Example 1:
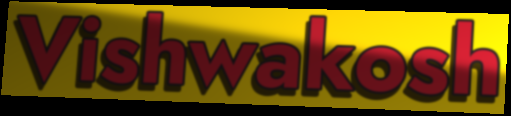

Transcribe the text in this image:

Vishwakosh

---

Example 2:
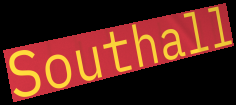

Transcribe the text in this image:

Southall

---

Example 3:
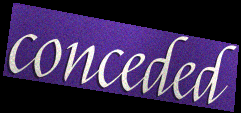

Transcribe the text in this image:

conceded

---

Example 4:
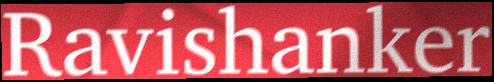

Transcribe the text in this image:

Ravishanker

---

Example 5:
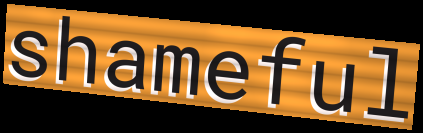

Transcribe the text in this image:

shameful